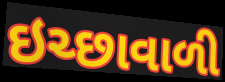
ઇચ્છાવાળી